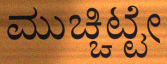
ಮುಚ್ಚಿಟ್ಟೇ